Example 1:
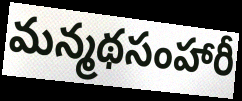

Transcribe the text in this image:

మన్మథసంహారీ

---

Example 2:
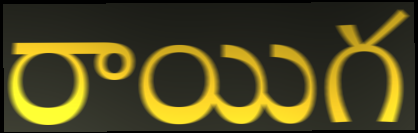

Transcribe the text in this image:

రాయిగ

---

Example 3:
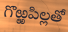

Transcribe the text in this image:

గొఱ్ఱపిల్లతో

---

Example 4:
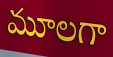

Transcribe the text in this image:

మూలగా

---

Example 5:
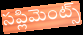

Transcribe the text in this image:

సప్లిమెంట్స్